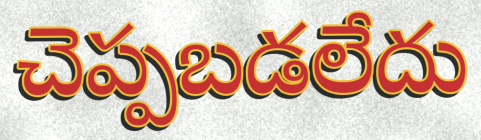
చెప్పబడలేదు